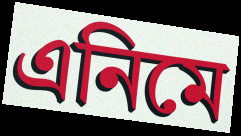
এনিমে